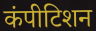
कंपीटिशन